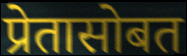
प्रेतासोबत